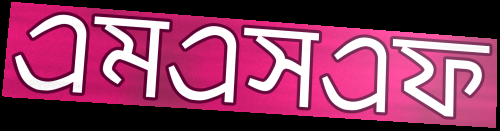
এমএসএফ